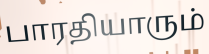
பாரதியாரும்